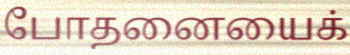
போதனையைக்